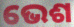
ଭେଶ